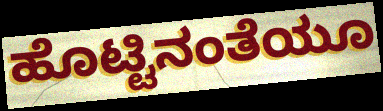
ಹೊಟ್ಟಿನಂತೆಯೂ